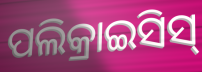
ପଲିକ୍ରାଇସିସ୍